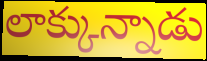
లాక్కున్నాడు